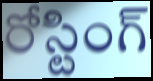
రోస్టింగ్